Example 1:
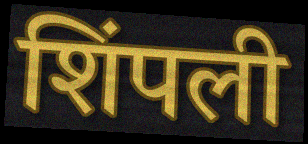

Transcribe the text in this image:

शिंपली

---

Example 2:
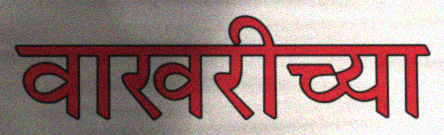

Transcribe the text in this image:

वाखरीच्या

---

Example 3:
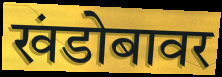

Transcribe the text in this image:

खंडोबावर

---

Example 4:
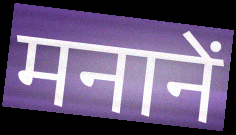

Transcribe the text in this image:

मनानें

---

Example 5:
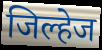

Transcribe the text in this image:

जिल्हेज